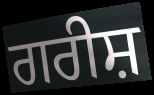
ਗਰੀਸ਼